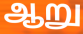
ஆறு